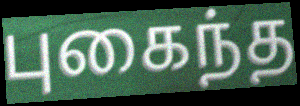
புகைந்த